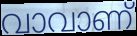
വാവാണ്